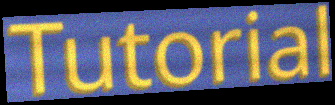
Tutorial